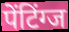
पेंटिंग्ज